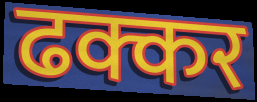
ढक्कर